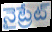
నైట్రేట్